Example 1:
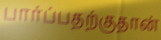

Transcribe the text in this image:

பார்ப்பதற்குதான்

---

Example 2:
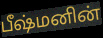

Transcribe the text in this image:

பீஷ்மனின்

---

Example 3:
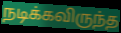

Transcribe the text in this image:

நடிக்கவிருந்த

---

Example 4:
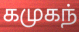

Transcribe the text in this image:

கமுகந்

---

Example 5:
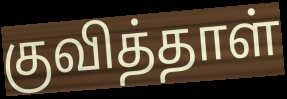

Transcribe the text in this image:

குவித்தாள்